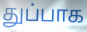
துப்பாக